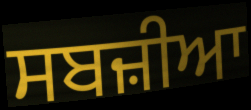
ਸਬਜ਼ੀਆ